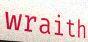
wraith